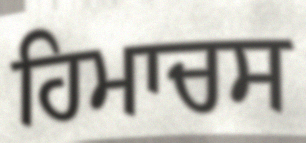
ਹਿਮਾਚਸ